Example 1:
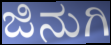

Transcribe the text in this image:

ಜಿನುಗಿ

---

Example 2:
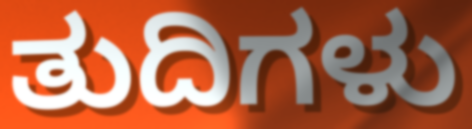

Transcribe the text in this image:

ತುದಿಗಳು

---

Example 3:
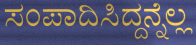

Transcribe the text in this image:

ಸಂಪಾದಿಸಿದ್ದನ್ನೆಲ್ಲ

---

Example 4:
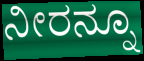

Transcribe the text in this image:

ನೀರನ್ನೂ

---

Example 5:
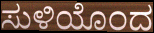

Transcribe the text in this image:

ಸುಳಿಯೊಂದ